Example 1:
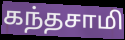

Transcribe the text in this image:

கந்தசாமி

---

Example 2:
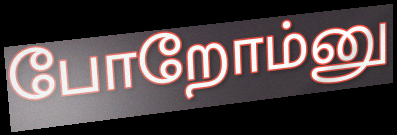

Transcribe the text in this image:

போறோம்னு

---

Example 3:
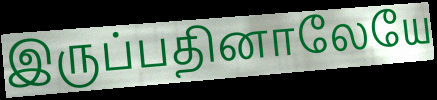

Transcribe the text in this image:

இருப்பதினாலேயே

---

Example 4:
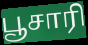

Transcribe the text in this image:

பூசாரி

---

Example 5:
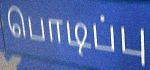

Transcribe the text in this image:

பொடிப்பு